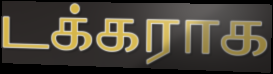
டக்கராக